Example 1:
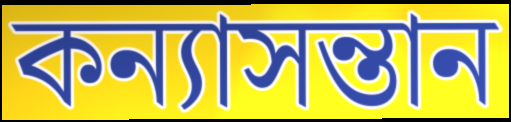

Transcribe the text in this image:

কন্যাসন্তান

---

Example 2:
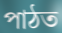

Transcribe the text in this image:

পাঠত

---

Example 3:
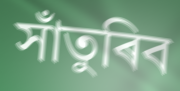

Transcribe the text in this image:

সাঁতুৰিব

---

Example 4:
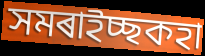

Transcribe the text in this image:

সমৰাইচ্ছকহা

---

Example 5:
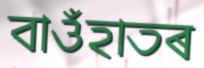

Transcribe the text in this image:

বাওঁহাতৰ